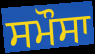
ਸਮੌਸਾ